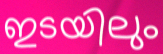
ഇടയിലും